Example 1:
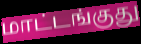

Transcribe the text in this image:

மாட்டங்குது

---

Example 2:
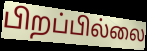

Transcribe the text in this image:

பிறப்பில்லை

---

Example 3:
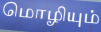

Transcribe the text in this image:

மொழியும்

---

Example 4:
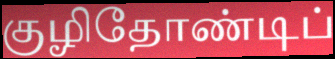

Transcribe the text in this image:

குழிதோண்டிப்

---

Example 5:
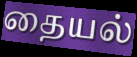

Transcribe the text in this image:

தையல்